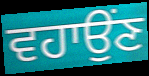
ਵਹਾਉਂਣ